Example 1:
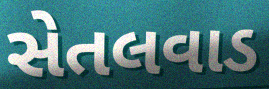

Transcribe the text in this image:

સેતલવાડ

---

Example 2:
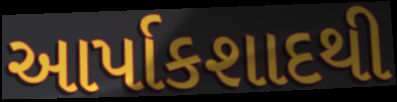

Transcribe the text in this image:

આર્પાકશાદથી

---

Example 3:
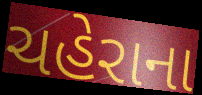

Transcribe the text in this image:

ચહેરાના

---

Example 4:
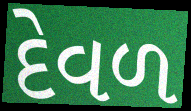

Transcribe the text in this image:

દેવળ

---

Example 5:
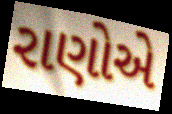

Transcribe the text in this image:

રાણોએ